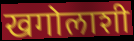
खगोलाशी